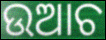
ଉଆଚ